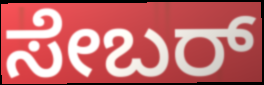
ಸೇಬರ್